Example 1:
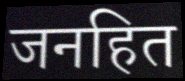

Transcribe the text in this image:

जनहित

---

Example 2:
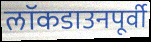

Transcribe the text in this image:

लॉकडाउनपूर्वी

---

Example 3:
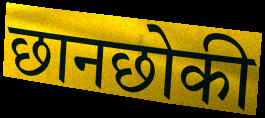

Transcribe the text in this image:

छानछोकी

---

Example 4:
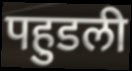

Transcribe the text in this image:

पहुडली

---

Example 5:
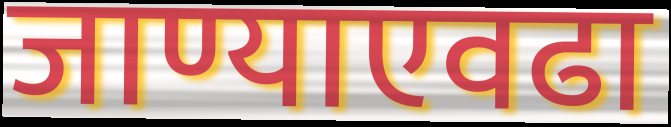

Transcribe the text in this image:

जाण्याएवढा